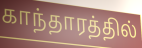
காந்தாரத்தில்